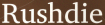
Rushdie